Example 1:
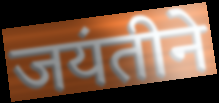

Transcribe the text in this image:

जयंतीने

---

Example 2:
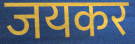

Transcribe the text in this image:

जयकर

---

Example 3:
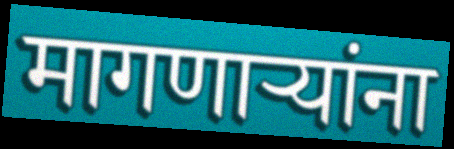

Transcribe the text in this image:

मागणार्‍यांना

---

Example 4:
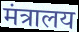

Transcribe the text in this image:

मंत्रालय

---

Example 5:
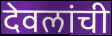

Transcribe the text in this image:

देवलांची